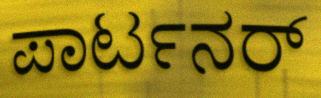
ಪಾರ್ಟನರ್